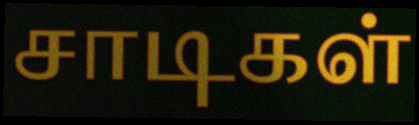
சாடிகள்